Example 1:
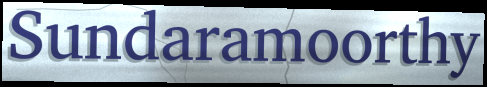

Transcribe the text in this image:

Sundaramoorthy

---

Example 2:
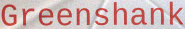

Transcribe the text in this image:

Greenshank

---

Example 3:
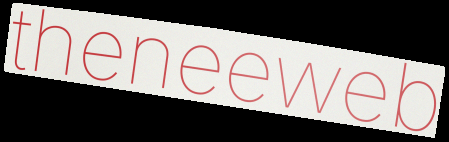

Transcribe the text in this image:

theneeweb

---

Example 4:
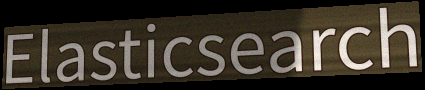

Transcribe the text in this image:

Elasticsearch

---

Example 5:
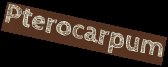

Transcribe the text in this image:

Pterocarpum